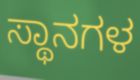
ಸ್ಥಾನಗಳ